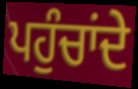
ਪਹੁੰਚਾਂਦੇ